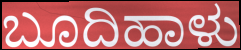
ಬೂದಿಹಾಳು